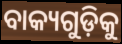
ବାକ୍ୟଗୁଡ଼ିକୁ